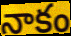
నాకం